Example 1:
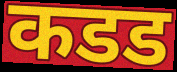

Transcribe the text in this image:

कडड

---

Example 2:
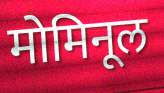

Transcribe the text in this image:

मोमिनूल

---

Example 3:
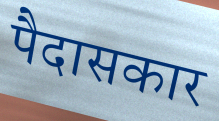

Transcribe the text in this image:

पैदासकार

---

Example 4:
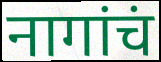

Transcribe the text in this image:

नागांचं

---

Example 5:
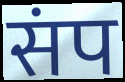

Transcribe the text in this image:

संप